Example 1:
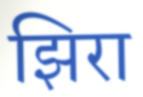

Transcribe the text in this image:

झिरा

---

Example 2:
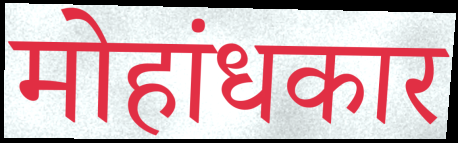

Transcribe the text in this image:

मोहांधकार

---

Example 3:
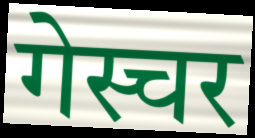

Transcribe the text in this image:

गेस्चर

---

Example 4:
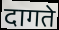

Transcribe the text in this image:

दागते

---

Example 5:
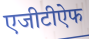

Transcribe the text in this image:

एजीटीऐफ